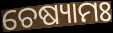
ଚେଷ୍ୟାମଃ